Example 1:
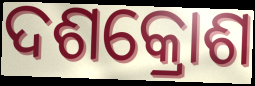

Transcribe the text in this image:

ଦଶକ୍ରୋଶ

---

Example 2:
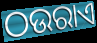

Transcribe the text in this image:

ଠଉରାଏ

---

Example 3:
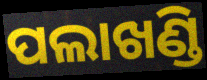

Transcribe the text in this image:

ପଲାଖଣ୍ଡି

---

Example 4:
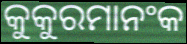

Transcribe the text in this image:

କୁକୁରମାନଂକ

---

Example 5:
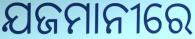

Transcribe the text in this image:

ଯଜମାନୀରେ